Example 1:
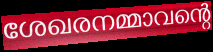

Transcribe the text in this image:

ശേഖരനമ്മാവന്റെ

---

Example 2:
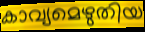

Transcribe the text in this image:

കാവ്യമെഴുതിയ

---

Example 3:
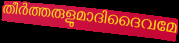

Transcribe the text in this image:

തീർത്തരുളുമാദിദൈവമേ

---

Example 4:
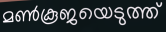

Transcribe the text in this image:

മൺകൂജയെടുത്ത്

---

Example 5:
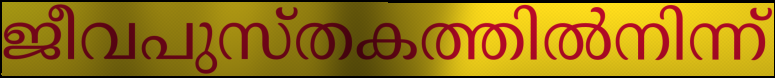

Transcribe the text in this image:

ജീവപുസ്തകത്തിൽനിന്ന്